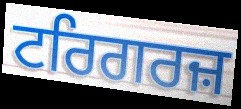
ਟਰਿਗਰਜ਼